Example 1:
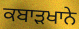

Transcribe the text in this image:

ਕਬਾੜਖਾਨੇ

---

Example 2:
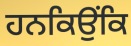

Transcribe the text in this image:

ਹਨਕਿਉਂਕਿ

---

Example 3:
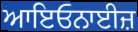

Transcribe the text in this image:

ਆਇਓਨਾਈਜ਼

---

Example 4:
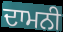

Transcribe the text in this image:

ਦਾਮਨੀ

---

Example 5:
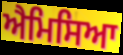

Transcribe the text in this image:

ਐਮਿਸਿਆ